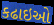
કઢાઇઓ